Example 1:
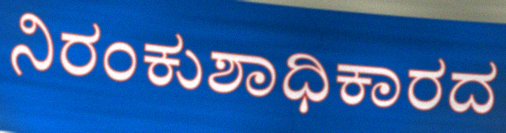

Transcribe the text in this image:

ನಿರಂಕುಶಾಧಿಕಾರದ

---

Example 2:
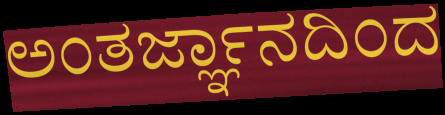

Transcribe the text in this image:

ಅಂತರ್ಜ್ಞಾನದಿಂದ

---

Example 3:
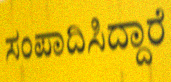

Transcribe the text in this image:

ಸಂಪಾದಿಸಿದ್ದಾರೆ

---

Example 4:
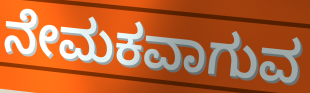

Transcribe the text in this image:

ನೇಮಕವಾಗುವ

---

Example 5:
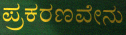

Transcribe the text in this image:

ಪ್ರಕರಣವೇನು